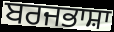
ਬਰਜਭਾਸ਼ਾ